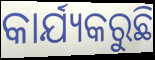
କାର୍ଯ୍ୟକରୁଛି